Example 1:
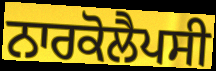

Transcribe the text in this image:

ਨਾਰਕੋਲੈਪਸੀ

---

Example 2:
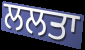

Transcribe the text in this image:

ਲਲਤਾ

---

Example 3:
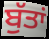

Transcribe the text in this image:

ਬੁੱਤਾਂ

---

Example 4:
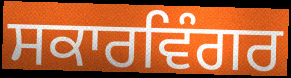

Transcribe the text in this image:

ਸਕਾਰਵਿੰਗਰ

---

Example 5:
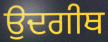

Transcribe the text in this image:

ਉਦਗੀਥ